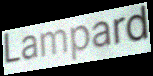
Lampard